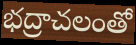
భద్రాచలంతో